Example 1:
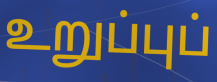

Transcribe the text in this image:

உறுப்புப்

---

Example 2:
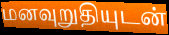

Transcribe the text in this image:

மனவுறுதியுடன்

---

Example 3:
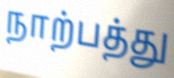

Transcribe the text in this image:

நாற்பத்து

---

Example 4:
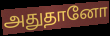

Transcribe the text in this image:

அதுதானோ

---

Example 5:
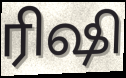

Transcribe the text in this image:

ரிஷி